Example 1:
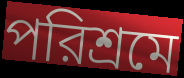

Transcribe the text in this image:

পরিশ্রমে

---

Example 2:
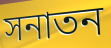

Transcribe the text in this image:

সনাতন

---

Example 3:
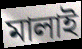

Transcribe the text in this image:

মালাই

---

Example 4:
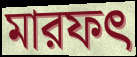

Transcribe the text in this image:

মারফৎ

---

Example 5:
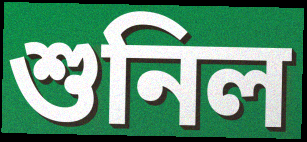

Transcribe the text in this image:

শুনিল